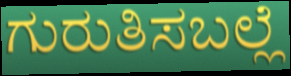
ಗುರುತಿಸಬಲ್ಲೆ